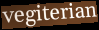
vegiterian